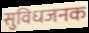
सुविधजनक